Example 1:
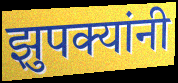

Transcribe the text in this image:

झुपक्यांनी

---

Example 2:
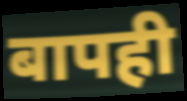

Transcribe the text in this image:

बापही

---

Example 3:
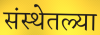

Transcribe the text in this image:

संस्थेतल्या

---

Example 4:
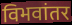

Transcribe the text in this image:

विभवांतर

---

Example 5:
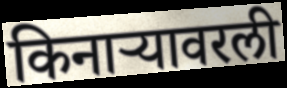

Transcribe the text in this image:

किनाऱ्यावरली